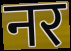
नर